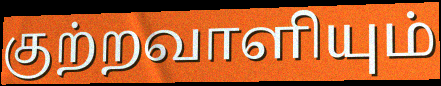
குற்றவாளியும்